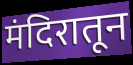
मंदिरातून